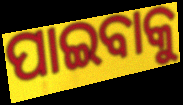
ପାଇବାକୁ